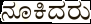
ನೂಕಿದರು